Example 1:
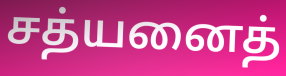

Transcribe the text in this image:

சத்யனைத்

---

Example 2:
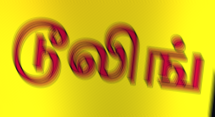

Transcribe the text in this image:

டூலிங்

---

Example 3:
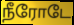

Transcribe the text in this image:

நீரோடே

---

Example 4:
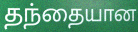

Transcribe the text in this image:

தந்தையான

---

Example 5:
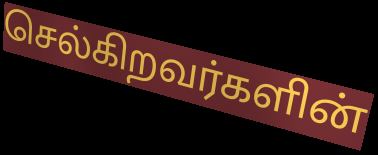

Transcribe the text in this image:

செல்கிறவர்களின்